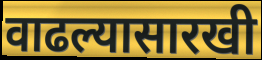
वाढल्यासारखी